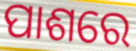
ପାଶରେ